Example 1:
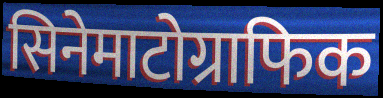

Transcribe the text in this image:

सिनेमाटोग्राफिक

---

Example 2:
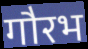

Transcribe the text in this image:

गौरभ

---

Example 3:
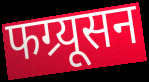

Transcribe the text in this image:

फग्र्यूसन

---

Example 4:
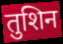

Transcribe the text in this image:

तुशिन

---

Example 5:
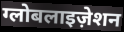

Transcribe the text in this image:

ग्लोबलाइज़ेशन